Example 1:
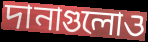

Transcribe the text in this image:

দানাগুলোও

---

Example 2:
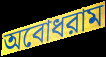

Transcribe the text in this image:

অবোধরাম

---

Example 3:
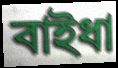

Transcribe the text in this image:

বাইধা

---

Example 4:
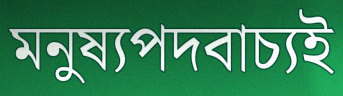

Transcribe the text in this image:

মনুষ্যপদবাচ্যই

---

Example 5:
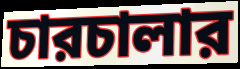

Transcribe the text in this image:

চারচালার